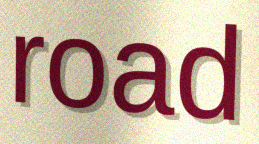
road